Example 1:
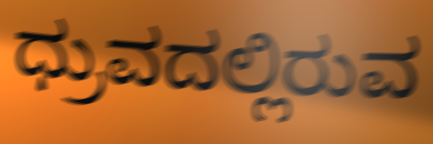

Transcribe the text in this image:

ಧ್ರುವದಲ್ಲಿರುವ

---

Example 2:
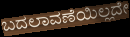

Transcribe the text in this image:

ಬದಲಾವಣೆಯಿಲ್ಲದೇ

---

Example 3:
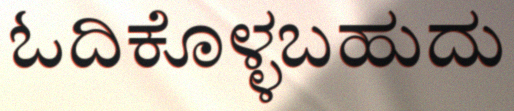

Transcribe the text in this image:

ಓದಿಕೊಳ್ಳಬಹುದು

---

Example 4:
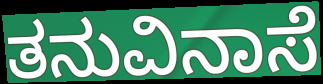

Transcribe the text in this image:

ತನುವಿನಾಸೆ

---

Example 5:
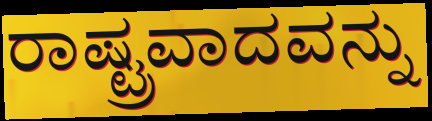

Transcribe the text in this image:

ರಾಷ್ಟ್ರವಾದವನ್ನು